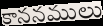
కాననములు